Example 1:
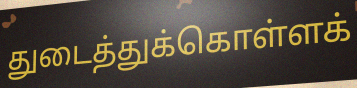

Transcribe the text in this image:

துடைத்துக்கொள்ளக்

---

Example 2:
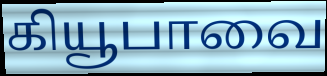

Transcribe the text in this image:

கியூபாவை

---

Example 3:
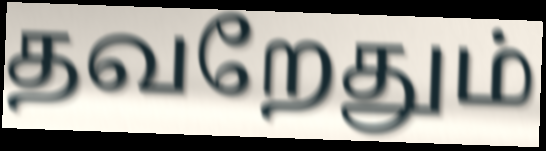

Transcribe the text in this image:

தவறேதும்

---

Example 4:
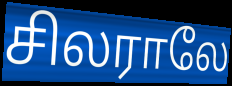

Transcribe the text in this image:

சிலராலே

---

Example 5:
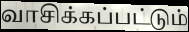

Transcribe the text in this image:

வாசிக்கப்பட்டும்